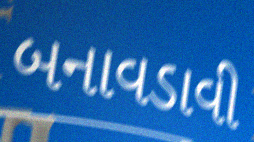
બનાવડાવી